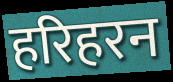
हरिहरन